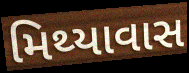
મિથ્યાવાસ